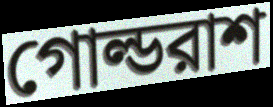
গোল্ডরাশ